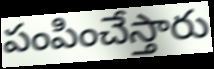
పంపించేస్తారు